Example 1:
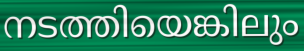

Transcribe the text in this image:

നടത്തിയെങ്കിലും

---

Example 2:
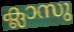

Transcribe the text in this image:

ക്ലാസു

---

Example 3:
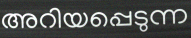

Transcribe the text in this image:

അറിയപ്പെടുന്ന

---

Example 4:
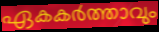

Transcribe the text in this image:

ഏകകർത്താവും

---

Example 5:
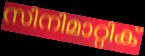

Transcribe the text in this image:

സിനിമാറ്റിക്